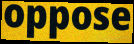
oppose